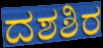
ದಶಶಿರ